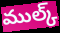
ముల్క్